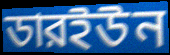
ডারইউন